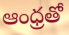
ఆంధ్రతో